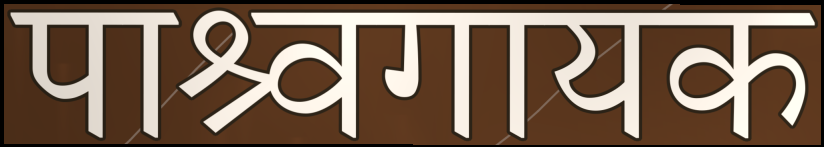
पाश्र्वगायक